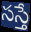
సస్తే